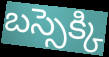
బస్సెక్కి